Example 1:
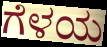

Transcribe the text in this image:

ಗೆಳಯ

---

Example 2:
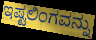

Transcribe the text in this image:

ಇಷ್ಟಲಿಂಗವನ್ನು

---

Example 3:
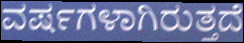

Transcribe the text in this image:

ವರ್ಷಗಳಾಗಿರುತ್ತದೆ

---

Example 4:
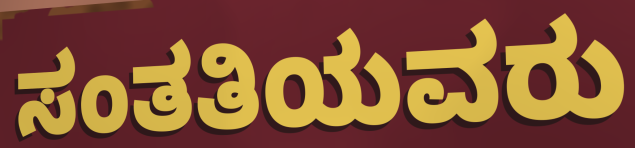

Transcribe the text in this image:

ಸಂತತಿಯವರು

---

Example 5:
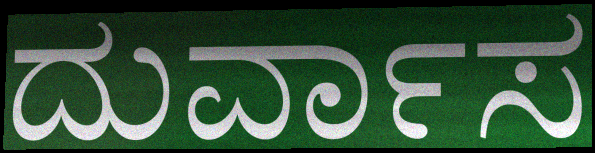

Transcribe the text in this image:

ದುರ್ವಾಸ